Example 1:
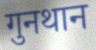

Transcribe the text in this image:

गुनथान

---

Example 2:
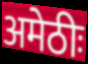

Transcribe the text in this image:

अमेठीः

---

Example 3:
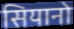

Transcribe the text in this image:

सियानो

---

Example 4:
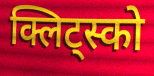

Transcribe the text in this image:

क्लिट्स्को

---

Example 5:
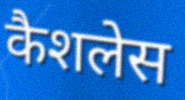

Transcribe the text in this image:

कैशलेस